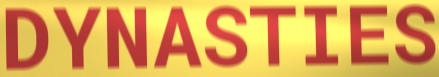
DYNASTIES